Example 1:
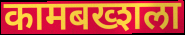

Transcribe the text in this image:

कामबख्शला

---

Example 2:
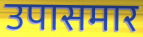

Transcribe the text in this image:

उपासमार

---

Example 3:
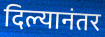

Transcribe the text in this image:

दिल्यानंतर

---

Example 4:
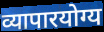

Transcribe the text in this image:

व्यापारयोग्य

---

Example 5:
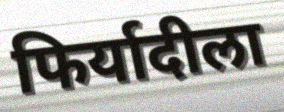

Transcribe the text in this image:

फिर्यादीला